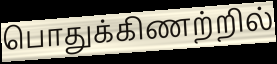
பொதுக்கிணற்றில்